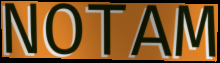
NOTAM